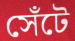
সেঁটে